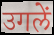
उगलें